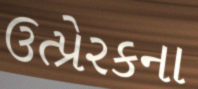
ઉત્પ્રેરકના